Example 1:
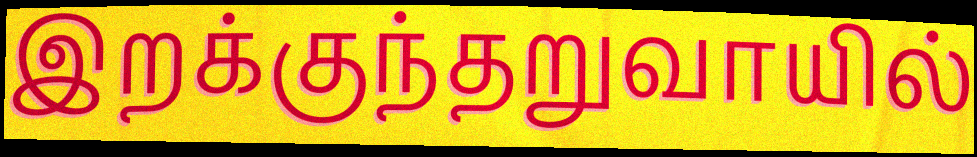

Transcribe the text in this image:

இறக்குந்தறுவாயில்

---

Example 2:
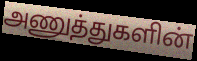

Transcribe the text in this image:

அணுத்துகளின்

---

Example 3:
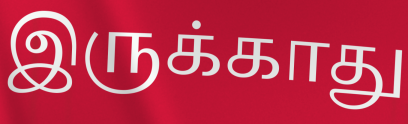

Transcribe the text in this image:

இருக்காது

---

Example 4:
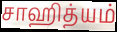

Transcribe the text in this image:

சாஹித்யம்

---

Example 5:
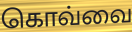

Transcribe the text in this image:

கொவ்வை